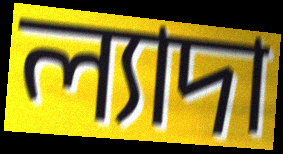
ল্যাদা